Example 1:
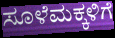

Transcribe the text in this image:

ಸೂಳೆಮಕ್ಕಳಿಗೆ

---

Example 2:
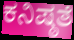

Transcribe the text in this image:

ಕನಿಷ್ಠತೆ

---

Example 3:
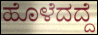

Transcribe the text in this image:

ಹೊಳೆದದ್ದೆ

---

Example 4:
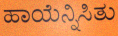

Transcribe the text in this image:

ಹಾಯೆನ್ನಿಸಿತು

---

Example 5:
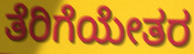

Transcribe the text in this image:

ತೆರಿಗೆಯೇತರ